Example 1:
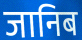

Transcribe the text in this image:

जानिब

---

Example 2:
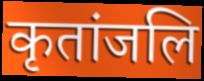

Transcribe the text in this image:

कृतांजलि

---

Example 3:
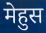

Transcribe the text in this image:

मेहुस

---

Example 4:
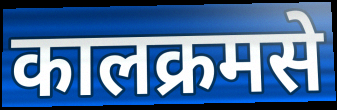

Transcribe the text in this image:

कालक्रमसे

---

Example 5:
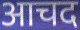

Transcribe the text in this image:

आचद